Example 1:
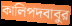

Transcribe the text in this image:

কালিপদবাবুর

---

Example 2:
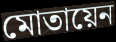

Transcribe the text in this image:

মোতায়েন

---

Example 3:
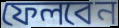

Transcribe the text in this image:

ফেলবেন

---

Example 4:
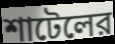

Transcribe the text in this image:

শাটেলের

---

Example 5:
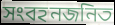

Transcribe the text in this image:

সংবহনজনিত